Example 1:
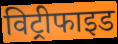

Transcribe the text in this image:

विट्रीफाइड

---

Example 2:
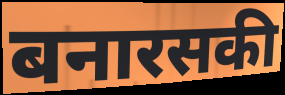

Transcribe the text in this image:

बनारसकी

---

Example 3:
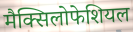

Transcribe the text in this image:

मैक्सिलोफेशियल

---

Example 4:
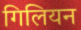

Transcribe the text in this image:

गिलियन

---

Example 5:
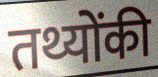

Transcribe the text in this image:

तथ्योंकी